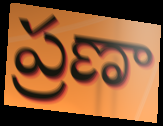
ప్రణా